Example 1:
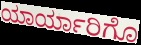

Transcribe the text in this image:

ಯಾರ್ಯಾರಿಗೊ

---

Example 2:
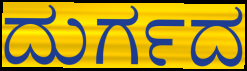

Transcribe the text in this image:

ದುರ್ಗದ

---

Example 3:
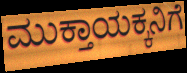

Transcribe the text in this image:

ಮುಕ್ತಾಯಕ್ಕನಿಗೆ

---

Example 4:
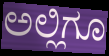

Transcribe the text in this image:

ಅಲ್ಲಿಗೂ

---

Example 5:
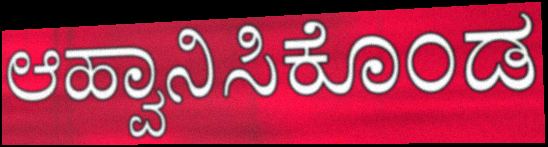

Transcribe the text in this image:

ಆಹ್ವಾನಿಸಿಕೊಂಡ